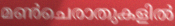
മൺചെരാതുകളിൽ